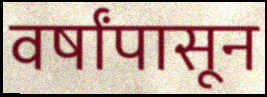
वर्षांपासून